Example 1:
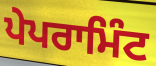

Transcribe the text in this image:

ਪੇਪਰਾਮਿੰਟ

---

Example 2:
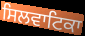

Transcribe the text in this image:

ਸਿਲਵਾਟਿਕਾ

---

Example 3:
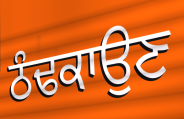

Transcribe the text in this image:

ਠੰਢਕਾਉਣ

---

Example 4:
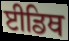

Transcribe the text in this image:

ਈਡਿਥ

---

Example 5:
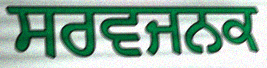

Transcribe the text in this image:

ਸਰਵਜਨਕ